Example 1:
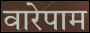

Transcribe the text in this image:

वारेपाम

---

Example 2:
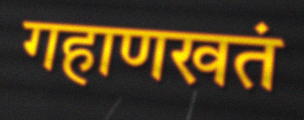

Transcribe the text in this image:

गहाणखतं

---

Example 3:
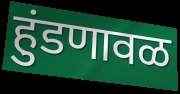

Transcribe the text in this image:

हुंडणावळ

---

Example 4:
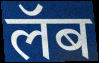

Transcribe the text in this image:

लॅब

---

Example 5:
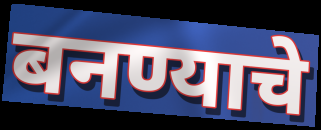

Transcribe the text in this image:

बनण्याचे